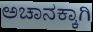
ಅಚಾನಕ್ಕಾಗಿ